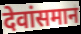
देवांसमान